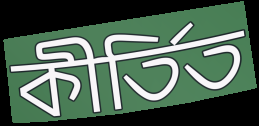
কীর্তিত